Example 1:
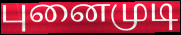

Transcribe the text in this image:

புனைமுடி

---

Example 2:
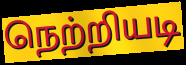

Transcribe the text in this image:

நெற்றியடி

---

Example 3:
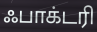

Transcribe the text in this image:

ஃபாக்டரி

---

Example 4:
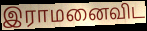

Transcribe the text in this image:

இராமனைவிட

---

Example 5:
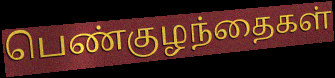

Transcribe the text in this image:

பெண்குழந்தைகள்